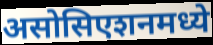
असोसिएशनमध्ये